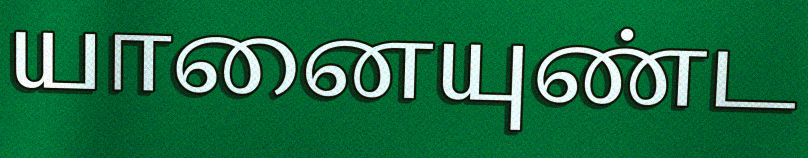
யானையுண்ட